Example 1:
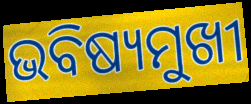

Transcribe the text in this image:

ଭବିଷ୍ୟମୁଖୀ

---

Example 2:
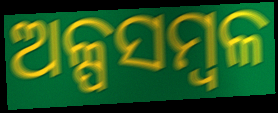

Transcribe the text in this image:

ଅଳ୍ପସମ୍ବଳ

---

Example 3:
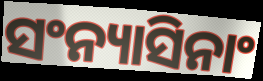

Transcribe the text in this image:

ସଂନ୍ୟାସିନାଂ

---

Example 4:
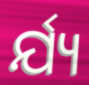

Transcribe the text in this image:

ର୍ଯ୍ୟ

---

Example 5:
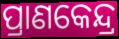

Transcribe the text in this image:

ପ୍ରାଣକେନ୍ଦ୍ର